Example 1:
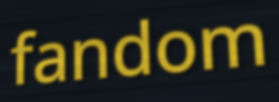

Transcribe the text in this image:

fandom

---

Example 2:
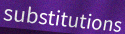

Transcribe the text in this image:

substitutions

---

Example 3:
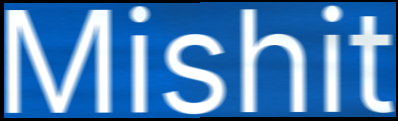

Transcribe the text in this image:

Mishit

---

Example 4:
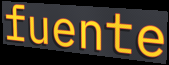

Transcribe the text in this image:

fuente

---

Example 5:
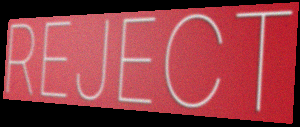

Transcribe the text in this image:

REJECT